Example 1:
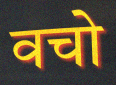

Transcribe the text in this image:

वचो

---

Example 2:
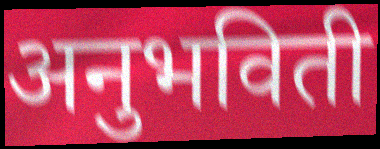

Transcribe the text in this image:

अनुभविती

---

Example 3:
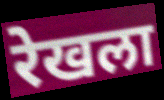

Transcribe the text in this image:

रेखला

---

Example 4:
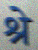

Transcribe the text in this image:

श्रे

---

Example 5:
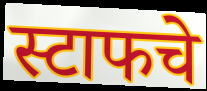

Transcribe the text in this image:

स्टाफचे